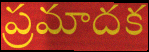
ప్రమాదక